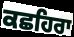
ਕਛਹਿਰਾ